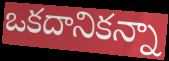
ఒకదానికన్నా